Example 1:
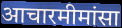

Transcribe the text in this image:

आचारमीमांसा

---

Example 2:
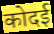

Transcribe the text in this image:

कोदई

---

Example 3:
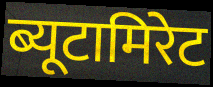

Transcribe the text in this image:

ब्यूटामिरेट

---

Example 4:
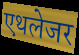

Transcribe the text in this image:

एथलेजर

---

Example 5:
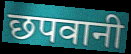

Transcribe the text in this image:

छपवानी